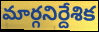
మార్గనిర్దేశిక